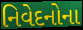
નિવેદનોના